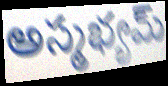
అస్మభ్యమ్